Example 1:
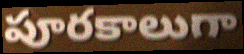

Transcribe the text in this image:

పూరకాలుగా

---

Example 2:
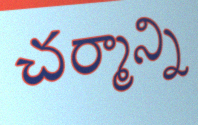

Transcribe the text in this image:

చర్మాన్ని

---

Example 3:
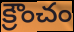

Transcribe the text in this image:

క్రౌంచం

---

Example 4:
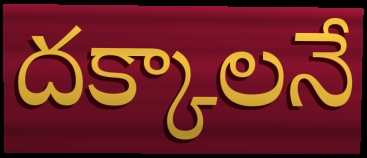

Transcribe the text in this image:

దక్కాలనే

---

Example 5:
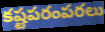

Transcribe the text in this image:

కష్టపరంపరలు